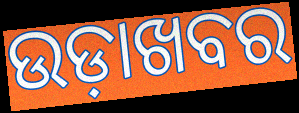
ଉଡ଼ାଖବର